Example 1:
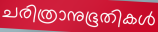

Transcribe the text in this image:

ചരിത്രാനുഭൂതികൾ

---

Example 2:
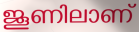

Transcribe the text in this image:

ജൂണിലാണ്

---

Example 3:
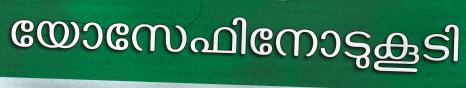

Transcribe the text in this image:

യോസേഫിനോടുകൂടി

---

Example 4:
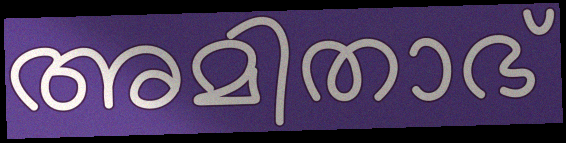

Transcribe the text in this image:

അമിതാഭ്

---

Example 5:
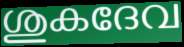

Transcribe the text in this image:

ശുകദേവ